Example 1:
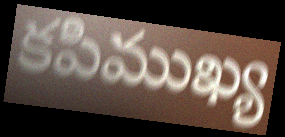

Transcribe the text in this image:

కపిముఖ్య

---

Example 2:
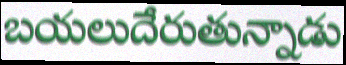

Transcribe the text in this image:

బయలుదేరుతున్నాడు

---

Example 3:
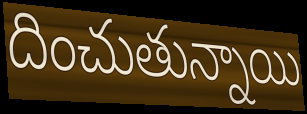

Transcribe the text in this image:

దించుతున్నాయి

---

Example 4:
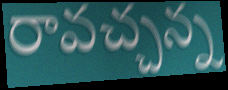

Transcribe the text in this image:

రావచ్చన్న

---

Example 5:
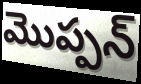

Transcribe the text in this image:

మొప్పన్